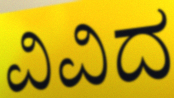
ವಿವಿದ